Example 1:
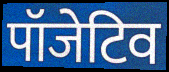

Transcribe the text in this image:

पॉजेटिव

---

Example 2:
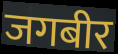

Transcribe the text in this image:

जगबीर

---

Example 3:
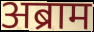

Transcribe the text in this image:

अब्राम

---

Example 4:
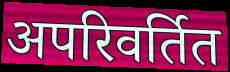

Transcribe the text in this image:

अपरिवर्तित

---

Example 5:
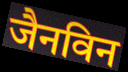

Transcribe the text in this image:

जैनविन